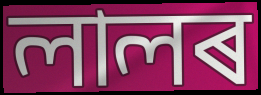
লালৰ